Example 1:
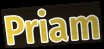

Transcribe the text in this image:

Priam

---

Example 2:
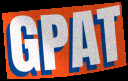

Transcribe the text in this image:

GPAT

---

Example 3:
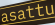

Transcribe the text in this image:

asattu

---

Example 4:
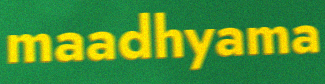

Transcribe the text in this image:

maadhyama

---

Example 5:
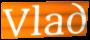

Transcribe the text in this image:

Vlad